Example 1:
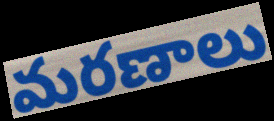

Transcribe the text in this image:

మరణాలు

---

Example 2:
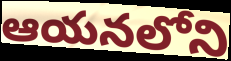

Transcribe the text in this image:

ఆయనలోని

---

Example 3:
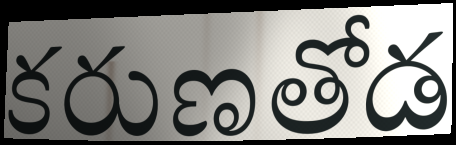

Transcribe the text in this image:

కరుణతోడ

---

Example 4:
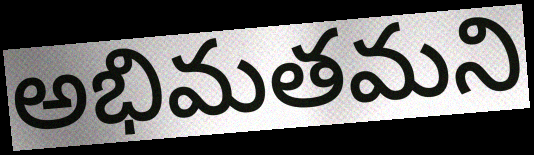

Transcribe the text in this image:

అభిమతమని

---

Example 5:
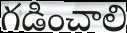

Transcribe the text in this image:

గడించాలి